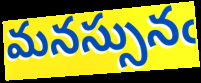
మనస్సునఁ